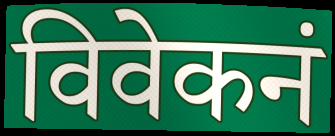
विवेकनं